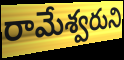
రామేశ్వరుని